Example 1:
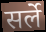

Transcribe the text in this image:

सर्ले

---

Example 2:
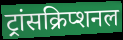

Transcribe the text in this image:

ट्रांसक्रिप्शनल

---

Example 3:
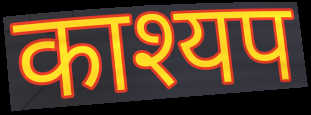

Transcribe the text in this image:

काश्यप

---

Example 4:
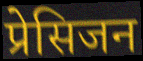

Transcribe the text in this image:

प्रेसिजन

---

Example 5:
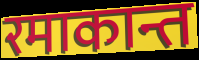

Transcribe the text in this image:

रमाकान्त